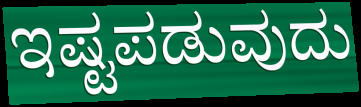
ಇಷ್ಟಪಡುವುದು